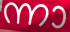
ന്നാ